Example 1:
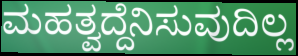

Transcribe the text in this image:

ಮಹತ್ವದ್ದೆನಿಸುವುದಿಲ್ಲ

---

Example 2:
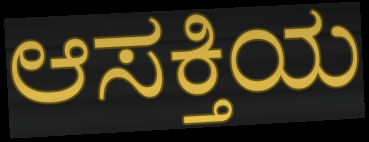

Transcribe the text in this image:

ಆಸಕ್ತಿಯ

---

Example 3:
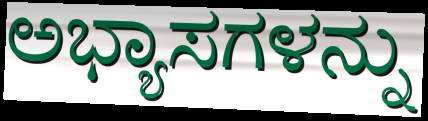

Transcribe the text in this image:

ಅಭ್ಯಾಸಗಳನ್ನು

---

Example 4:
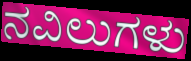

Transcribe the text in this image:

ನವಿಲುಗಳು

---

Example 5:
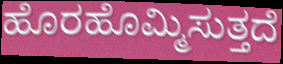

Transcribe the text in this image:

ಹೊರಹೊಮ್ಮಿಸುತ್ತದೆ